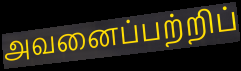
அவனைப்பற்றிப்